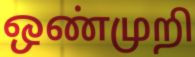
ஒண்முறி